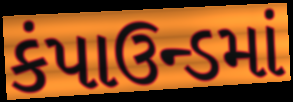
કંપાઉન્ડમાં